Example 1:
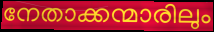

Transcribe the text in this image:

നേതാക്കന്മാരിലും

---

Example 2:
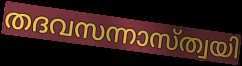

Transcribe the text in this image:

തദവസന്നാസ്ത്വയി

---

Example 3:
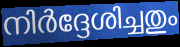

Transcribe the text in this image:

നിർദ്ദേശിച്ചതും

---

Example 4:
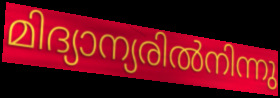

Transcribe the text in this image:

മിദ്യാന്യരിൽനിന്നു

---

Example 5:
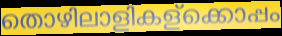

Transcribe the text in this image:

തൊഴിലാളികള്ക്കൊപ്പം